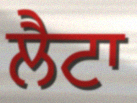
ਲੈਟਾ